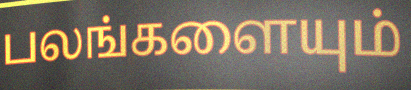
பலங்களையும்